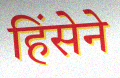
हिंसेने